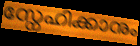
സ്നേഹിക്കാനും